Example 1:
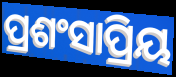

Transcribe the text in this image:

ପ୍ରଶଂସାପ୍ରିୟ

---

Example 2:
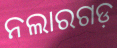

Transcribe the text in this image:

ନଲାରଗଡ଼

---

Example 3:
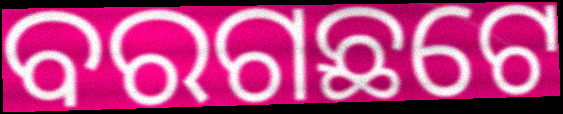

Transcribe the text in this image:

ବରଗଛଟେ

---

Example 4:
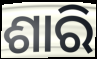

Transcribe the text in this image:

ଶାରି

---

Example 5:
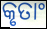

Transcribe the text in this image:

କୃତାଂ